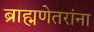
ब्राह्मणेतरांना